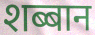
शब्बान